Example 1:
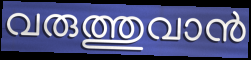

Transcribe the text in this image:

വരുത്തുവാൻ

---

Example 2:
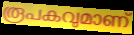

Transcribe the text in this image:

രൂപകവുമാണ്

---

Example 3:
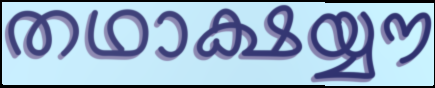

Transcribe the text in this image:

തഥാക്ഷയ്യൗ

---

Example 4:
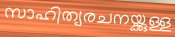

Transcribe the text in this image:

സാഹിത്യരചനയ്ക്കുള്ള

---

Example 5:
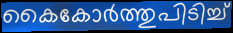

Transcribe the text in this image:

കൈകോർത്തുപിടിച്ച്